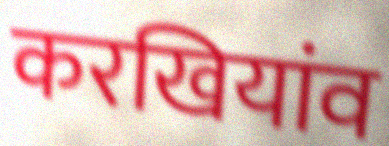
करखियांव